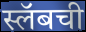
स्लॅबची